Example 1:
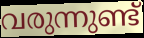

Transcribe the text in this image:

വരുന്നുണ്ട്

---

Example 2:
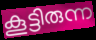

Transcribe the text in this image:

കൂട്ടിരുന്ന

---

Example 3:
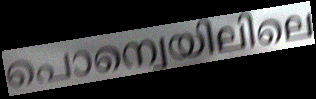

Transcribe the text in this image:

പൊന്വെയിലിലെ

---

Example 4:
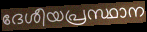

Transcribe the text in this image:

ദേശീയപ്രസ്ഥാന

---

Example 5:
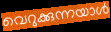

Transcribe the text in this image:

വെറുക്കുന്നയാൾ